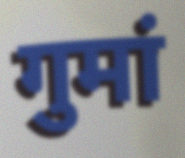
गुमां